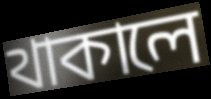
থাকালে